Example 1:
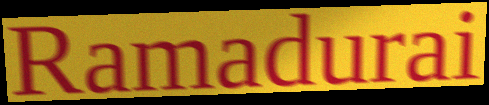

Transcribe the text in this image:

Ramadurai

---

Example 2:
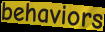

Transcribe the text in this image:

behaviors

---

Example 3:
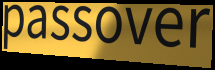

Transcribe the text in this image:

passover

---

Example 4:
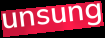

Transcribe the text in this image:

unsung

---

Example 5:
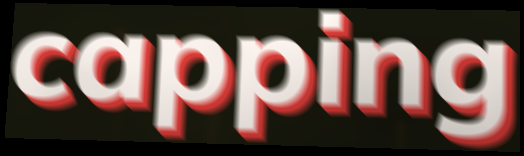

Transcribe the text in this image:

capping